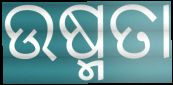
ଉଷ୍ମତା